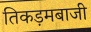
तिकड़मबाजी